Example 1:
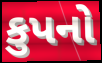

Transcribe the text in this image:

કુપનો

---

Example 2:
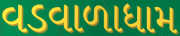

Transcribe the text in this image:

વડવાળાધામ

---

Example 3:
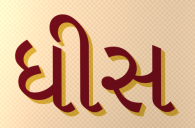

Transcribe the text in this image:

ધીસ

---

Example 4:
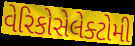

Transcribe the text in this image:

વેરિકોસેલેક્ટોમી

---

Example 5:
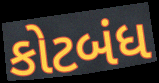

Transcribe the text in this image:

કોટબંધ